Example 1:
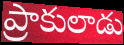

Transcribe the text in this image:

ప్రాకులాడు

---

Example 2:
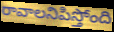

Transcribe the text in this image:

రావాలనిపిస్తోంది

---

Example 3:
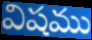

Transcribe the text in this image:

విషము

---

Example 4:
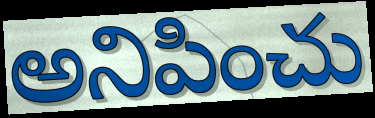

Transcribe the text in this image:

అనిపించు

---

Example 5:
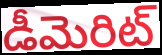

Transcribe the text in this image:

డీమెరిట్